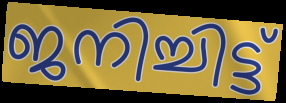
ജനിച്ചിട്ട്